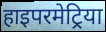
हाइपरमेट्रिया